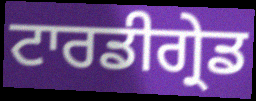
ਟਾਰਡੀਗ੍ਰੇਡ